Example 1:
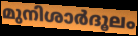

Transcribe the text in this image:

മുനിശാർദൂലം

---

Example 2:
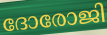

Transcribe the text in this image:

ദോരോജി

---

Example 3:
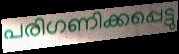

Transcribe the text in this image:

പരിഗണിക്കപ്പെട്ടു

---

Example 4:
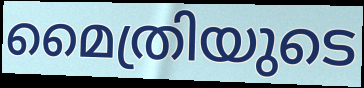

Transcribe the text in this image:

മൈത്രിയുടെ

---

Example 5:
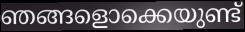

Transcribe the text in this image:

ഞങ്ങളൊക്കെയുണ്ട്